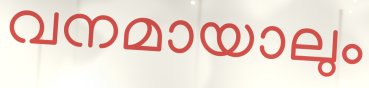
വനമായാലും